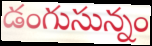
డంగుసున్నం